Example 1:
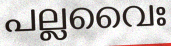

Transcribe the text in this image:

പല്ലവൈഃ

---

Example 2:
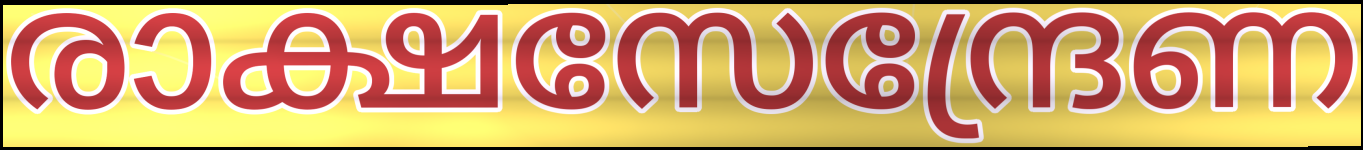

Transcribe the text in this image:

രാക്ഷസേന്ദ്രേണ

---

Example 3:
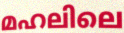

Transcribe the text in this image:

മഹലിലെ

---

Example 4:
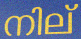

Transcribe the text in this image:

നില്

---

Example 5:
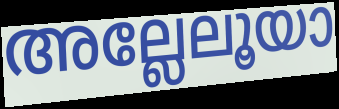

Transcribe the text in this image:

അല്ലേലൂയാ